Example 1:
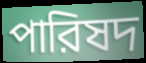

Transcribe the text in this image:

পারিষদ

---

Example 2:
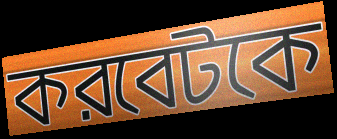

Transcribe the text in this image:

করবেটকে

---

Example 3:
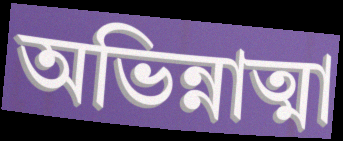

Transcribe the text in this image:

অভিন্নাত্মা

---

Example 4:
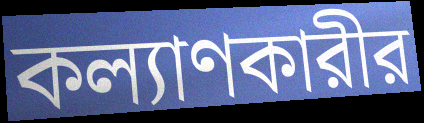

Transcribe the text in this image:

কল্যাণকারীর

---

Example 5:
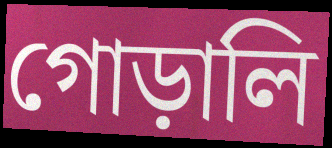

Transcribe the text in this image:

গোড়ালি